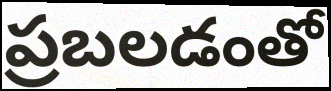
ప్రబలడంతో